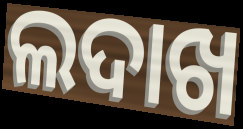
ଲଦାଖ